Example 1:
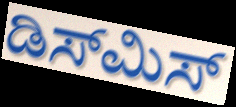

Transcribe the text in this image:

ಡಿಸ್‌ಮಿಸ್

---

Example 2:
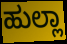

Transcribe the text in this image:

ಹುಲ್ಲಾ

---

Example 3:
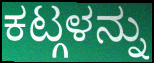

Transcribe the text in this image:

ಕಟ್ಗಳನ್ನು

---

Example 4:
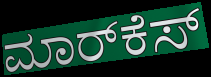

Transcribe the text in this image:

ಮಾರ್‌ಕೆಸ್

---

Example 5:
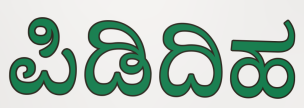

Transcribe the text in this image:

ಪಿಡಿದಿಹ